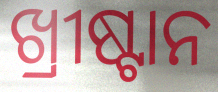
ଖ୍ରୀଷ୍ଟାନ